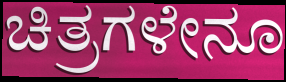
ಚಿತ್ರಗಳೇನೂ